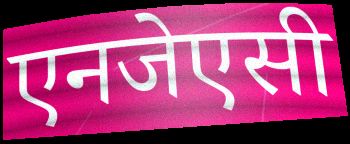
एनजेएसी